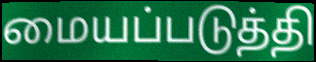
மையப்படுத்தி